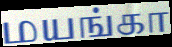
மயங்கா